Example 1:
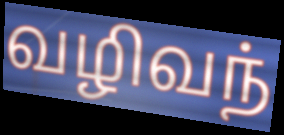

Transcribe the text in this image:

வழிவந்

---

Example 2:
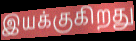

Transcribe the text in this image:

இயக்குகிறது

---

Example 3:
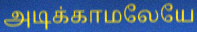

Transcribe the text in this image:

அடிக்காமலேயே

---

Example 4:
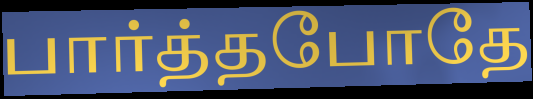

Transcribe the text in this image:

பார்த்தபோதே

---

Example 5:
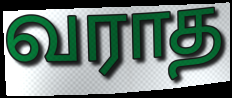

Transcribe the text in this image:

வராத